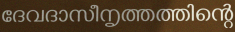
ദേവദാസീനൃത്തത്തിന്റെ